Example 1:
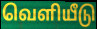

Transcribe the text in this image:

வெளியீடு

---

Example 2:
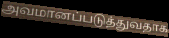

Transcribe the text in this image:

அவமானப்படுத்துவதாக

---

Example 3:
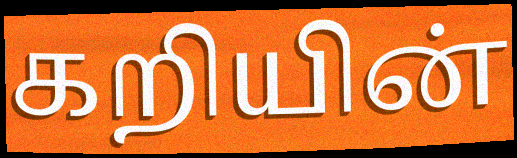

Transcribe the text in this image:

கறியின்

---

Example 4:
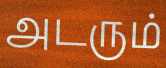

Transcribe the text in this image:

அடரும்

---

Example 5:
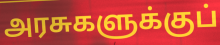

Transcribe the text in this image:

அரசுகளுக்குப்